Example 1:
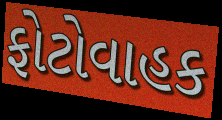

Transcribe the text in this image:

ફોટોવાહક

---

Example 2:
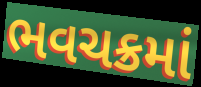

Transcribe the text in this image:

ભવચક્રમાં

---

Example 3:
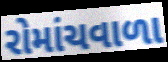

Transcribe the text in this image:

રોમાંચવાળા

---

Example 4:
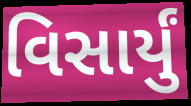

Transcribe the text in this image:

વિસાર્યું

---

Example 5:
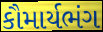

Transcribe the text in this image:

કૌમાર્યભંગ